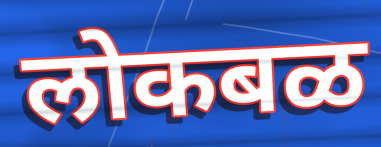
लोकबळ